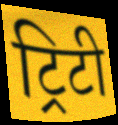
ट्रिटी